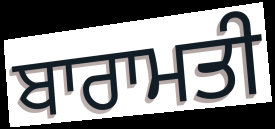
ਬਾਰਾਮਤੀ